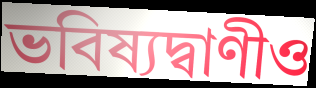
ভবিষ্যদ্বাণীও